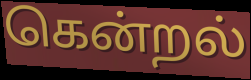
கென்றல்